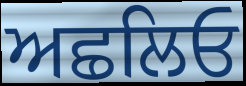
ਅਛਲਿਓ